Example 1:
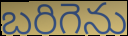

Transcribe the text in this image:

బరిగెను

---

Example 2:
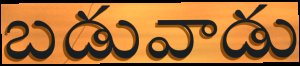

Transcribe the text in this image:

బడువాడు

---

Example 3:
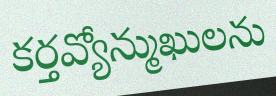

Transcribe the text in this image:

కర్తవ్యోన్ముఖులను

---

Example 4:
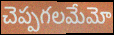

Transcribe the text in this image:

చెప్పగలమేమో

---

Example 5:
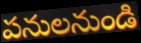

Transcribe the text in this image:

పనులనుండి